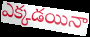
ఎక్కడయినా